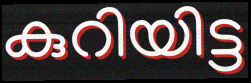
കുറിയിട്ട